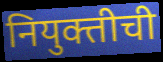
नियुक्तीची